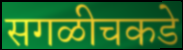
सगळीचकडे